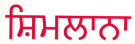
ਸ਼ਿਮਲਾਨਾ